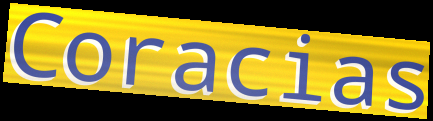
Coracias